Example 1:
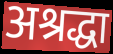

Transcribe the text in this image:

अश्रद्धा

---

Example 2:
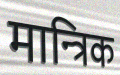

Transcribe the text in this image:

मान्त्रिक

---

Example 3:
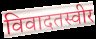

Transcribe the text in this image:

विवादतस्वीर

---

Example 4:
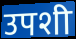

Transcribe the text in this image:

उपशी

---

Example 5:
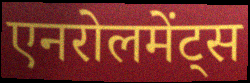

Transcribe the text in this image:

एनरोलमेंट्स